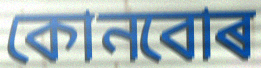
কোনবোৰ